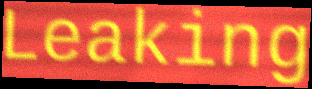
Leaking